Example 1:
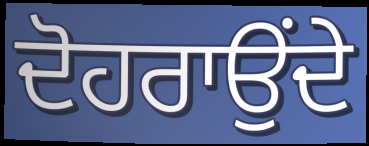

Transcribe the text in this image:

ਦੋਹਰਾਉਂਦੇ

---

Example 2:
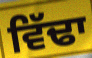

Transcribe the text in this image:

ਵਿੱਢਾ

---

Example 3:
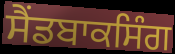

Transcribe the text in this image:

ਸੈਂਡਬਾਕਸਿੰਗ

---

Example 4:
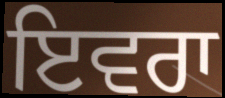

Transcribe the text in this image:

ਇਵਰਾ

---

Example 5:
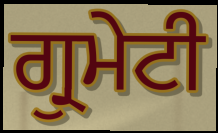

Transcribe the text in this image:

ਗ੍ਰੁਮੇਟੀ